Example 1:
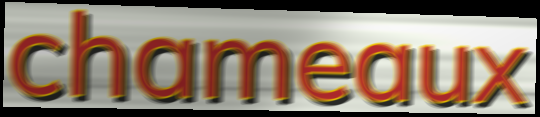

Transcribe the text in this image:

chameaux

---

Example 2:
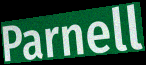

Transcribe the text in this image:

Parnell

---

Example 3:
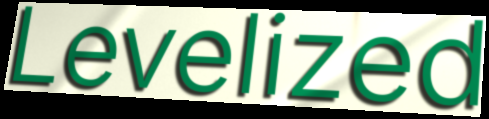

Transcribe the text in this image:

Levelized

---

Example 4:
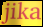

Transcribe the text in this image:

jika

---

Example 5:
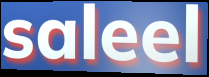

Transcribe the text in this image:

saleel